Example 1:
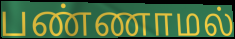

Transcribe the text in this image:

பண்ணாமல்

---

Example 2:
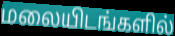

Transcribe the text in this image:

மலையிடங்களில்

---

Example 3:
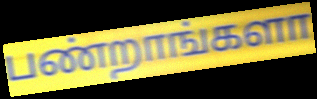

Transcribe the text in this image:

பண்றாங்களா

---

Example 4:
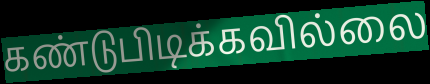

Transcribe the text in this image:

கண்டுபிடிக்கவில்லை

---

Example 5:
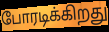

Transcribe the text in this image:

போரடிக்கிறது